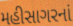
મહીસાગરનાં